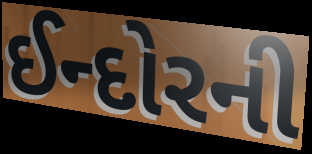
ઈન્દોરની